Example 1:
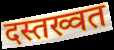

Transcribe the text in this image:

दस्तख्वत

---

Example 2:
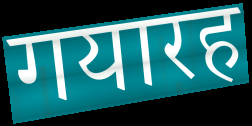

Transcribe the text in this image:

गयारह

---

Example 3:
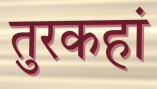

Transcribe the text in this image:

तुरकहां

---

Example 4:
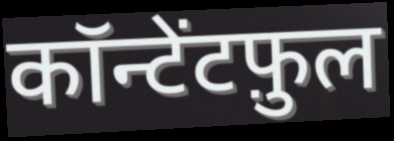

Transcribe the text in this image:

कॉन्टेंटफ़ुल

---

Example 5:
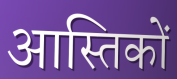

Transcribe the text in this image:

आस्तिकों